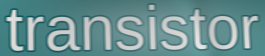
transistor